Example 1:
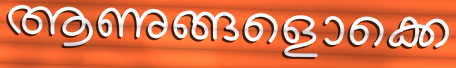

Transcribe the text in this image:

ആണുങ്ങളൊക്കെ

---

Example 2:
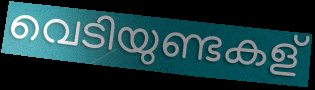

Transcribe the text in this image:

വെടിയുണ്ടകള്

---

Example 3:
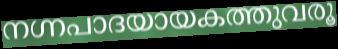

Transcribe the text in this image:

നഗ്നപാദയായകത്തുവരൂ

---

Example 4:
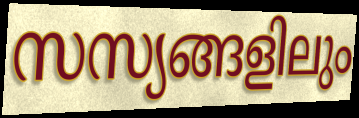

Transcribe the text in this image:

സസ്യങ്ങളിലും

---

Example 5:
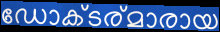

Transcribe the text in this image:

ഡോക്ടര്മാരായ